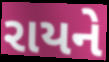
રાયને